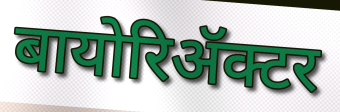
बायोरिॲक्टर